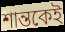
শান্তকেই